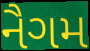
નૈગમ